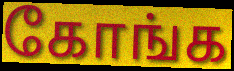
கோங்க